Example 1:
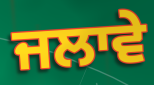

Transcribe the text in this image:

ਜਲਾਵੇ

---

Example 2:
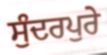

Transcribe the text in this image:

ਸੁੰਦਰਪੁਰੇ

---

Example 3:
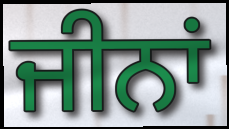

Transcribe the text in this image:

ਜੀਨਾਂ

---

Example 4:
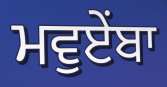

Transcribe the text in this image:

ਮਵੁਏਂਬਾ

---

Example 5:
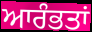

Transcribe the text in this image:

ਆਰੰਭਤਾਂ